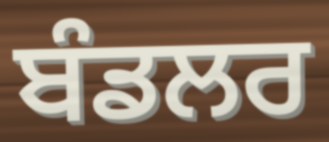
ਬੰਡਲਰ